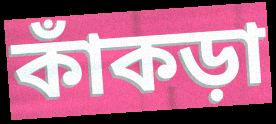
কাঁকড়া